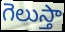
గెలుస్తా